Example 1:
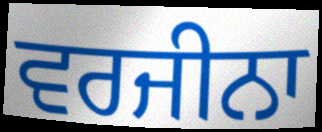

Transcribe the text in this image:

ਵਰਜੀਨਾ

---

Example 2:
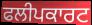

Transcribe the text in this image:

ਫਲੀਪਕਾਰਟ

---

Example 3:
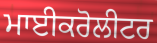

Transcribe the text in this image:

ਮਾਈਕਰੋਲੀਟਰ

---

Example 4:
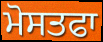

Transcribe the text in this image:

ਮੋਸਤਫਾ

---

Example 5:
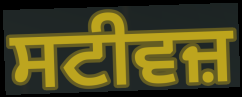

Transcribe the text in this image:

ਸਟੀਵਜ਼